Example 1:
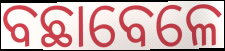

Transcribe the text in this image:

ବଛାବେଳେ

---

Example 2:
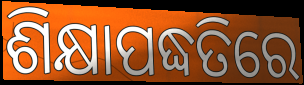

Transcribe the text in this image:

ଶିକ୍ଷାପଦ୍ଧତିରେ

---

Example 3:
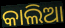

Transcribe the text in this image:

କାଲିଆ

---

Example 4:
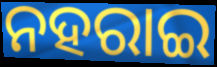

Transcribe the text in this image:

ନହରାଇ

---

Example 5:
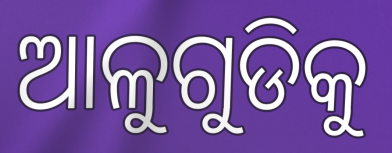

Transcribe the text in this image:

ଆଳୁଗୁଡିକୁ